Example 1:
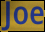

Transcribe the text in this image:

Joe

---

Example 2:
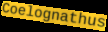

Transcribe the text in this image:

Coelognathus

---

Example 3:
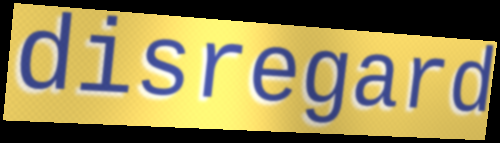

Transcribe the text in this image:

disregard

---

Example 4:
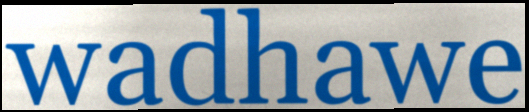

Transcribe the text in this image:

wadhawe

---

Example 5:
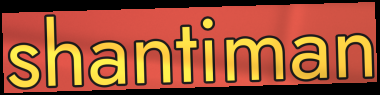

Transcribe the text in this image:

shantiman